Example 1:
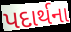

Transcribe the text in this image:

પદાર્થના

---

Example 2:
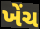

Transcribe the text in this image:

ખેંચ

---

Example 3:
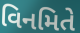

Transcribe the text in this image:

વિનમિતે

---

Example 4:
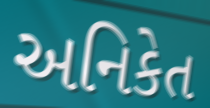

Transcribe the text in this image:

અનિકેત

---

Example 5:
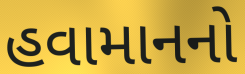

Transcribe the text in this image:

હવામાનનો